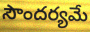
సౌందర్యమే